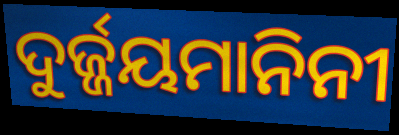
ଦୁର୍ଜ୍ଜୟମାନିନୀ